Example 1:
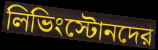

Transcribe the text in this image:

লিভিংস্টোনদের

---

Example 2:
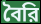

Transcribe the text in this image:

বৈরি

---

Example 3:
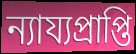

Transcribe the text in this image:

ন্যায্যপ্রাপ্তি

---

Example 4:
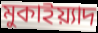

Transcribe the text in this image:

মুকাইয়্যাদ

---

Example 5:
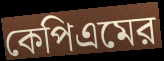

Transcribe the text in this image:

কেপিএমের